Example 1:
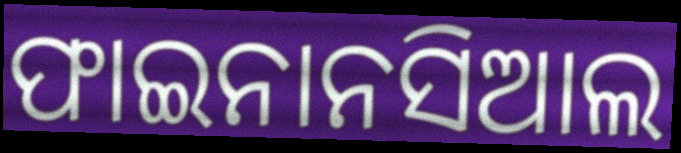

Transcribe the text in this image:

ଫାଇନାନସିଆଲ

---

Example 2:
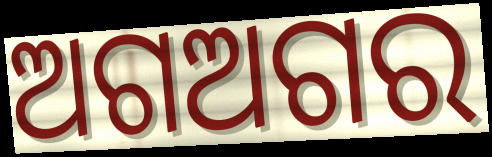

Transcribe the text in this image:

ଅଗଅଗର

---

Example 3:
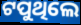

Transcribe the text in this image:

ଟପୁଥିଲେ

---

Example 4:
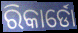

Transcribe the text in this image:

ରିକାର୍ଡୋ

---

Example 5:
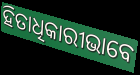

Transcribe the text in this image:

ହିତାଧିକାରୀଭାବେ